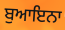
ਬੁਆਇਨਾ